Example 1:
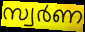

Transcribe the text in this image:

സ്വർണ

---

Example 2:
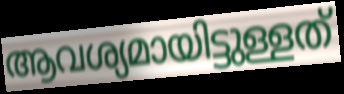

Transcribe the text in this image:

ആവശ്യമായിട്ടുള്ളത്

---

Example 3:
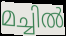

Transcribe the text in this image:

മച്ചിൽ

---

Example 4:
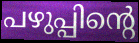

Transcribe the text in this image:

പഴുപ്പിന്റെ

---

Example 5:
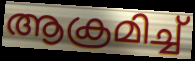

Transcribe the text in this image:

ആക്രമിച്ച്